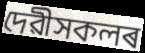
দেৱীসকলৰ